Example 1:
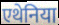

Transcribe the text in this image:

एथेनिया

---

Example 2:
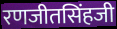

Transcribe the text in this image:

रणजीतसिंहजी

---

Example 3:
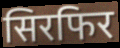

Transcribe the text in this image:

सिरफिर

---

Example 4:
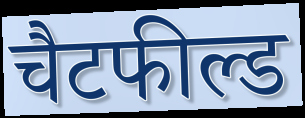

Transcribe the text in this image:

चैटफील्ड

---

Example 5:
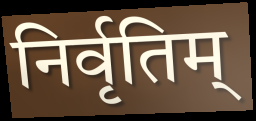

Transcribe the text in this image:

निर्वृतिम्